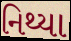
નિથ્યા